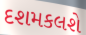
દશમકલશે